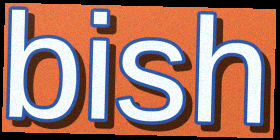
bish